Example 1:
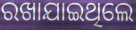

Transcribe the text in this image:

ରଖାଯାଇଥିଲେ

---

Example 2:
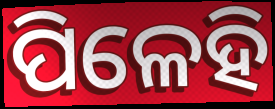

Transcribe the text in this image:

ପିଳେହି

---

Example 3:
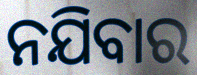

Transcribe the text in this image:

ନଯିବାର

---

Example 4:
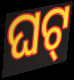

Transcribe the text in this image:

ଘଟ୍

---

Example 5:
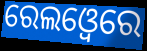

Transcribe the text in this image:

ରେଲଓ୍ୱେରେ